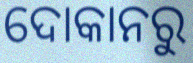
ଦୋକାନରୁ